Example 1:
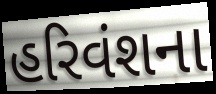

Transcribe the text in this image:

હરિવંશના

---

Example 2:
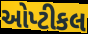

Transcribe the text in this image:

ઓપ્ટીકલ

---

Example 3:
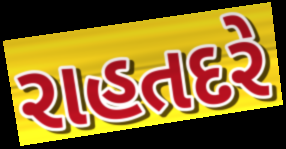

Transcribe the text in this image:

રાહતદરે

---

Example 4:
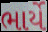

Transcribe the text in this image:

ભાર્યે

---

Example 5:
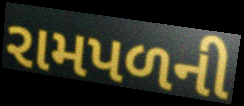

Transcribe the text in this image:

રામપળની